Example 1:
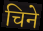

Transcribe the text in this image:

चिने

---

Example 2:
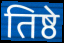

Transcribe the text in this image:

तिष्ठे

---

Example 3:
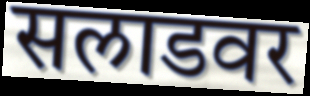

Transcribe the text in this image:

सलाडवर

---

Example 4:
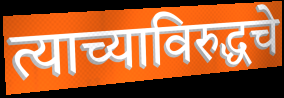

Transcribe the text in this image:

त्याच्याविरुद्धचे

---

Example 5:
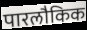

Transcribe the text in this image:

पारलौकिक